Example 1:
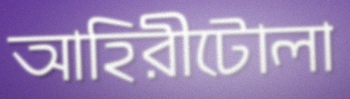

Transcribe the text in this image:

আহিরীটোলা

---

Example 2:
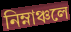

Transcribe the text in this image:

নিম্নাঞ্চলে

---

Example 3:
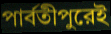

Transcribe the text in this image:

পার্বতীপুরেই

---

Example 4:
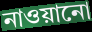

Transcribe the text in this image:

নাওয়ানো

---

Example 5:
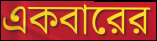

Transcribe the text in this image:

একবারের